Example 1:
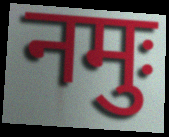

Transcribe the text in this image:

नमुः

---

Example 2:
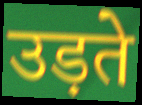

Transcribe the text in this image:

उड़ते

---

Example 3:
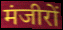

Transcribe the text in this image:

मंजीरों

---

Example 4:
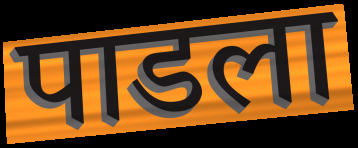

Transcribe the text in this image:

पाडला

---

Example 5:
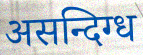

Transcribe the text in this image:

असन्दिग्ध